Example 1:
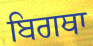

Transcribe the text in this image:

ਬਿਗਥਾ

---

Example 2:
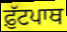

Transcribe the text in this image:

ਫ਼ੁੱਟਪਾਥ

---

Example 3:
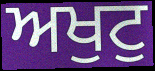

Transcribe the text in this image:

ਅਖੁਟੁ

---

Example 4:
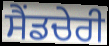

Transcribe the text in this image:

ਸੈਂਡਚੇਰੀ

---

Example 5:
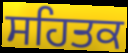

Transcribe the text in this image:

ਸਹਿਤਕ